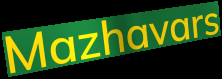
Mazhavars